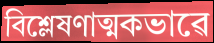
বিশ্লেষণাত্মকভাৱে